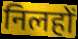
निलहों